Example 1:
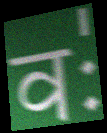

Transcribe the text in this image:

वः॑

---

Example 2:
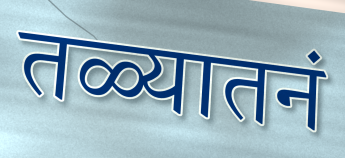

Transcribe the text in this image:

तळ्यातनं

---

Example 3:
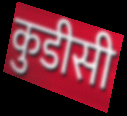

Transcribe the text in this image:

कुडीसी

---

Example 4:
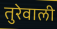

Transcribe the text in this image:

तुरेवाली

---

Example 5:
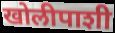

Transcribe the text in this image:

खोलीपाशी